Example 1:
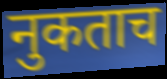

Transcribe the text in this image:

नुकताच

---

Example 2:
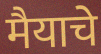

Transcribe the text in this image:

मैयाचे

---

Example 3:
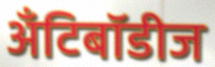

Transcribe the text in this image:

अँटिबॉडीज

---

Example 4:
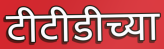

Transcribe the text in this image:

टीटीडीच्या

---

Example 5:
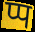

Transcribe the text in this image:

प्प